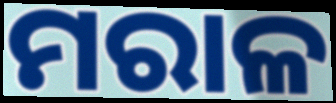
ମରାଳ